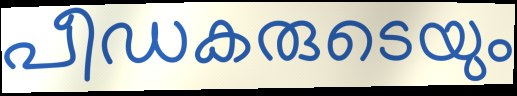
പീഡകരുടെയും